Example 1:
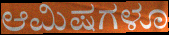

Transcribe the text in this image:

ಆಮಿಷಗಳೂ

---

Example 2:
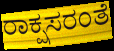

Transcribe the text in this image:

ರಾಕ್ಷಸರಂತೆ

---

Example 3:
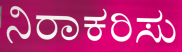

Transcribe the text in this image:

ನಿರಾಕರಿಸು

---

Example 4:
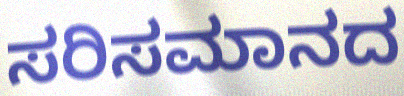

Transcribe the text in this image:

ಸರಿಸಮಾನದ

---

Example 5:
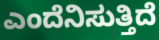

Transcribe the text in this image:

ಎಂದೆನಿಸುತ್ತಿದೆ